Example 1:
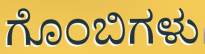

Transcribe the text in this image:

ಗೊಂಬಿಗಳು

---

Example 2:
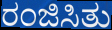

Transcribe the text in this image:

ರಂಜಿಸಿತು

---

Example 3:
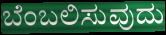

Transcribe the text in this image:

ಬೆಂಬಲಿಸುವುದು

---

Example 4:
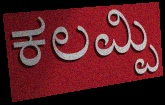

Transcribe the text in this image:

ಕಲಮ್ಪಿ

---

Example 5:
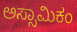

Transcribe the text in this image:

ಅಸ್ಸಾಮಿಕಂ